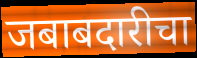
जबाबदारीचा